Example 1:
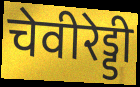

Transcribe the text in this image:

चेवीरेड्डी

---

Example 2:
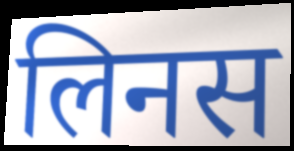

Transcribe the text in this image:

लिनस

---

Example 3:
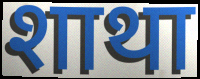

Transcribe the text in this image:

शाथा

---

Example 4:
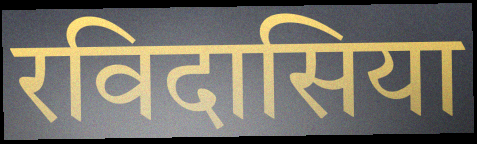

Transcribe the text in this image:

रविदासिया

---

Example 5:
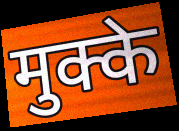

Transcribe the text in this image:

मुक्के